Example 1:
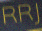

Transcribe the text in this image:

RRJ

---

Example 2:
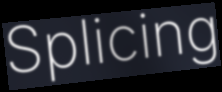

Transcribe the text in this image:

Splicing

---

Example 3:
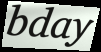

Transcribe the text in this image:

bday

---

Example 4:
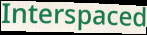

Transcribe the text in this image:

Interspaced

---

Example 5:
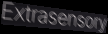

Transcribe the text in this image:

Extrasensory